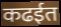
कढईत